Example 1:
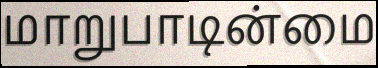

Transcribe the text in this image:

மாறுபாடின்மை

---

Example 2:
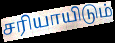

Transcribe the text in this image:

சரியாயிடும்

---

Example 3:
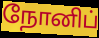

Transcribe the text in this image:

நோனிப்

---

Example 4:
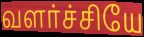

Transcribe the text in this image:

வளர்ச்சியே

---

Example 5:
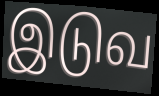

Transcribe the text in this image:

இடுவ